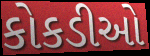
કોકડીઓ